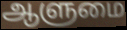
ஆளுமை